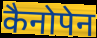
कैनोपेन